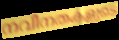
നവീനതകളുടെ